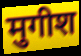
मुगीश